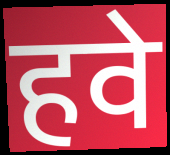
हवे